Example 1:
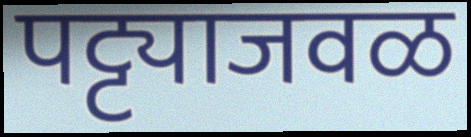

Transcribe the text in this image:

पट्ट्याजवळ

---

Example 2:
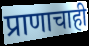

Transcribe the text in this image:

प्राणाचाही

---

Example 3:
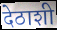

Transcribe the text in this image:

देठाशी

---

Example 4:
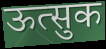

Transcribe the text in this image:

ऊत्सुक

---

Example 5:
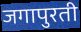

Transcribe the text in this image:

जगापुरती